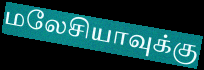
மலேசியாவுக்கு